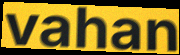
vahan